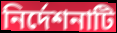
নির্দেশনাটি